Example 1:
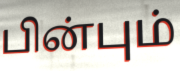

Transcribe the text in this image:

பின்பும்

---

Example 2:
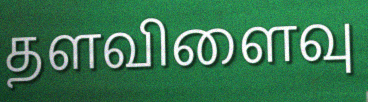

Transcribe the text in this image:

தளவிளைவு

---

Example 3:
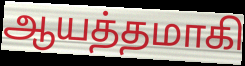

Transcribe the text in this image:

ஆயத்தமாகி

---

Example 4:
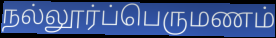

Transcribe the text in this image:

நல்லூர்ப்பெருமணம்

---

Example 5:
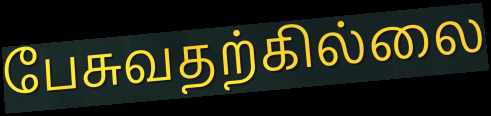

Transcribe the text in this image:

பேசுவதற்கில்லை